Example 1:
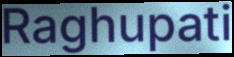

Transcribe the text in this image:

Raghupati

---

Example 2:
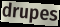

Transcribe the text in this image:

drupes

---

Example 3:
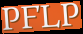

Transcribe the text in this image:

PFLP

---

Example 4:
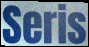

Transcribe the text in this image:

Seris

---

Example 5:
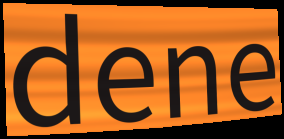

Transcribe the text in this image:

dene